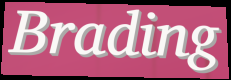
Brading